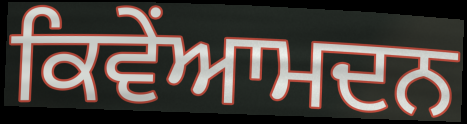
ਕਿਵੇਂਆਮਦਨ